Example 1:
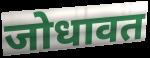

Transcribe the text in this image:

जोधावत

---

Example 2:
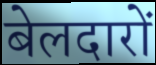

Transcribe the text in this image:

बेलदारों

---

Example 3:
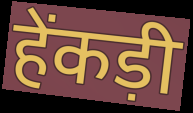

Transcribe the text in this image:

हेंकड़ी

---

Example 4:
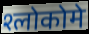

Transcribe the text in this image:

श्लोकोमे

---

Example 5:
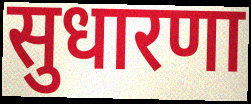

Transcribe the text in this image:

सुधारणा